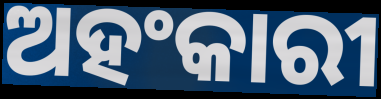
ଅହଂକାରୀ